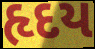
હૃદય